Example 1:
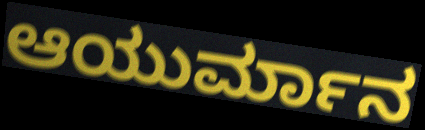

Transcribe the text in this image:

ಆಯುರ್ಮಾನ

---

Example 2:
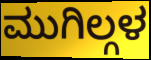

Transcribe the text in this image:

ಮುಗಿಲ್ಗಳ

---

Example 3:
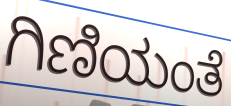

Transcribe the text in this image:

ಗಿಣಿಯಂತೆ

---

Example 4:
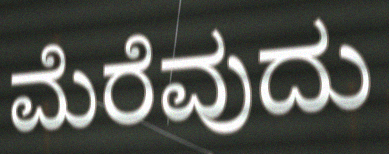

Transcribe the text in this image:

ಮೆರೆವುದು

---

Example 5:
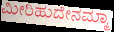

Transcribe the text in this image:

ಮೀರಿಹುದೇನಮ್ಮಾ